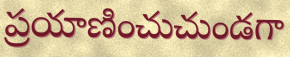
ప్రయాణించుచుండగా